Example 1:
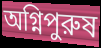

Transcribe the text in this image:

অগ্নিপুরুষ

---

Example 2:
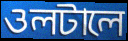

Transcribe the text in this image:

ওলটালে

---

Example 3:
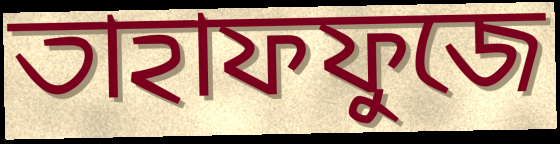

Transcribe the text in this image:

তাহাফফুজে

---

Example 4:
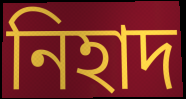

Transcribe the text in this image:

নিহাদ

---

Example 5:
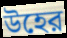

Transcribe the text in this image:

উহের